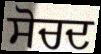
ਸੋਚਦ